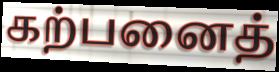
கற்பனைத்